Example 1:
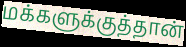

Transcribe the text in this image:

மக்களுக்குத்தான்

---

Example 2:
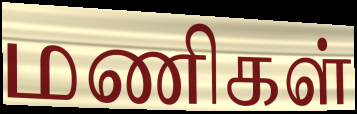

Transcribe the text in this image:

மணிகள்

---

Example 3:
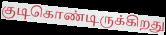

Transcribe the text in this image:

குடிகொண்டிருக்கிறது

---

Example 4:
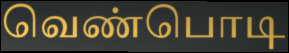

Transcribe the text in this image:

வெண்பொடி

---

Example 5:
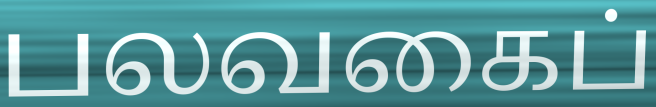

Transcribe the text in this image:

பலவகைப்